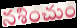
నశించుం